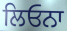
ਲਿਓਨਾ